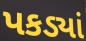
પકડ્યાં